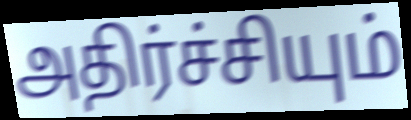
அதிர்ச்சியும்